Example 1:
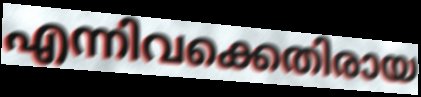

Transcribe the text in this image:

എന്നിവക്കെതിരായ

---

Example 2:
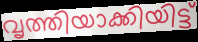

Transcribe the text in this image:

വൃത്തിയാക്കിയിട്ട്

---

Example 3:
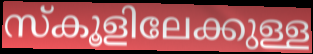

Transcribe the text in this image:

സ്കൂളിലേക്കുള്ള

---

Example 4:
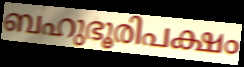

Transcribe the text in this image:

ബഹുഭൂരിപക്ഷം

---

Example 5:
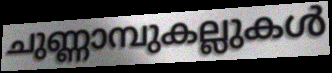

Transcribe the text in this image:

ചുണ്ണാമ്പുകല്ലുകൾ